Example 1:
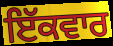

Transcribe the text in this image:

ਇੱਕਵਾਰ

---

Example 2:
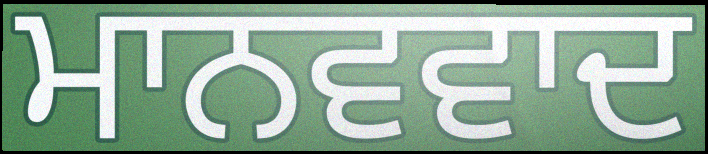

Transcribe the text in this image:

ਮਾਨਵਵਾਦ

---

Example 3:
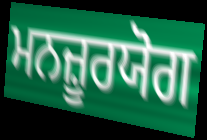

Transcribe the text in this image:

ਮਨਜ਼ੂਰਯੋਗ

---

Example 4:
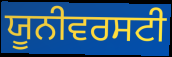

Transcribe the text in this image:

ਯੂਨੀਵਰਸਟੀ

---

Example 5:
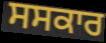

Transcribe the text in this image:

ਸਸਕਾਰ